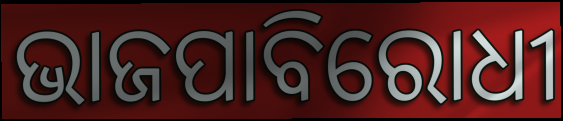
ଭାଜପାବିରୋଧୀ